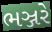
ભઞ્જરે